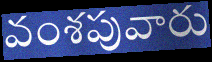
వంశపువారు